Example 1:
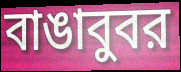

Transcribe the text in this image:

বাঙাবুবর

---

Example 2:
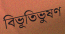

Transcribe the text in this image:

বিভূতিভুষণ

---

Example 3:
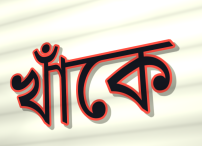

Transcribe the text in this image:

খাঁকে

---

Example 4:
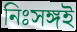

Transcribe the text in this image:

নিঃসঙ্গই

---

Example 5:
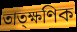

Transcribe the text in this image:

তাত্ক্ষণিক